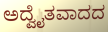
ಅದ್ವೈತವಾದದ